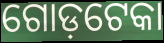
ଗୋଡ଼ଟେକା